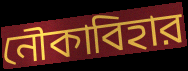
নৌকাবিহার